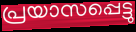
പ്രയാസപ്പെട്ടു